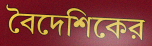
বৈদেশিকের